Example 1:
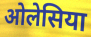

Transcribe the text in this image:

ओलेसिया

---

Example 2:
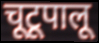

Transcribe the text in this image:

चूटूपालू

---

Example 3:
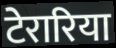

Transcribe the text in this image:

टेरारिया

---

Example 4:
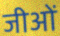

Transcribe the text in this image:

जीओं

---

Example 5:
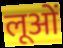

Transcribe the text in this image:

लूओं